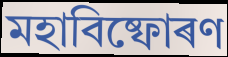
মহাবিষ্ফোৰণ